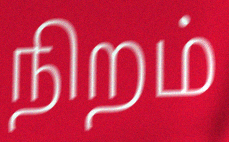
நிறம்